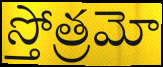
స్తోత్రమో